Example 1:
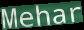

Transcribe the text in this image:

Mehar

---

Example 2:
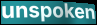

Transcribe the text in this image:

unspoken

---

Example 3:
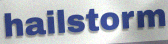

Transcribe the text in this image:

hailstorm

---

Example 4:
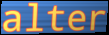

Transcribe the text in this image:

alter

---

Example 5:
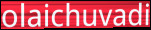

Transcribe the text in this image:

olaichuvadi